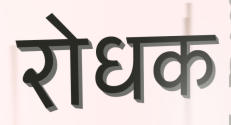
रोधक